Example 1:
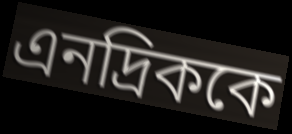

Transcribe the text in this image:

এনদ্রিককে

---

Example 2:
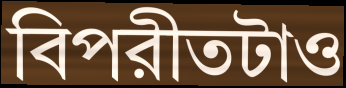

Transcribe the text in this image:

বিপরীতটাও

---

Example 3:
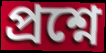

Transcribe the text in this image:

প্রশ্নে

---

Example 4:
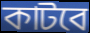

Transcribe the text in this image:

কাটবে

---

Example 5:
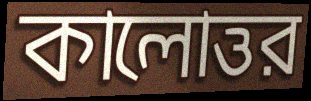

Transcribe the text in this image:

কালোত্তর